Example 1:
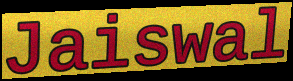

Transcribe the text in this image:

Jaiswal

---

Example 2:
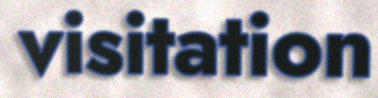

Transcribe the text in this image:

visitation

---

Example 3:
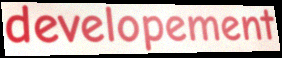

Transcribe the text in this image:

developement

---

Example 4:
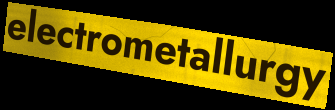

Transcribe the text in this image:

electrometallurgy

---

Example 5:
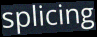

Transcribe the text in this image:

splicing